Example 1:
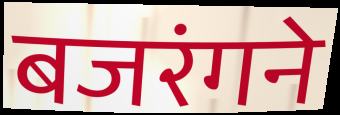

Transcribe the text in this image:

बजरंगने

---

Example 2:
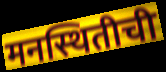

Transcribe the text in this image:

मनस्थितीची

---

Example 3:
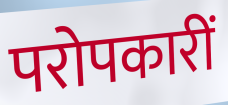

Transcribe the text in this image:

परोपकारीं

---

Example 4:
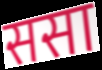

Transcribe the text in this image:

ससा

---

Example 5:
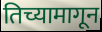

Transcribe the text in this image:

तिच्यामागून